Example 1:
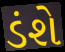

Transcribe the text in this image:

ડંશે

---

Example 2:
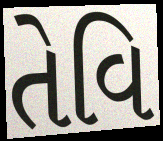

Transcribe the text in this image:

તેવિ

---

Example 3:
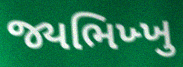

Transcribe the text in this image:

જ્યભિખ્ખુ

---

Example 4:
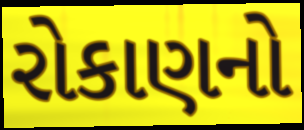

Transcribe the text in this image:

રોકાણનો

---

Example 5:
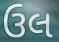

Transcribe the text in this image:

ઉલ